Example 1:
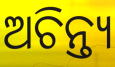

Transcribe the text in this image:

ଅଚିନ୍ତ୍ଯ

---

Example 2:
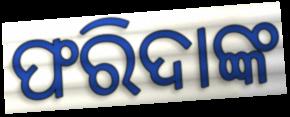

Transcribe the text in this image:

ଫରିଦାଙ୍କ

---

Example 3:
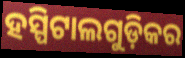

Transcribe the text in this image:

ହସ୍ପିଟାଲଗୁଡ଼ିକର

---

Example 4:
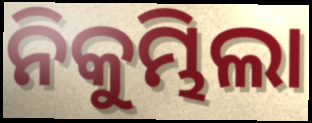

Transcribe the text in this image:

ନିକୁମ୍ଭିଲା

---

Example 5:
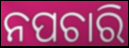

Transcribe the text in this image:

ନପଚାରି